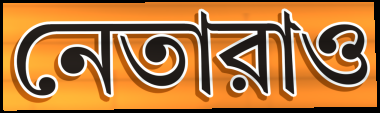
নেতারাও